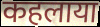
कहलाया